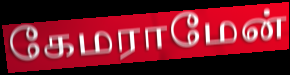
கேமராமேன்